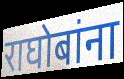
राघोबांना